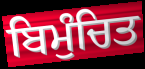
ਬਿਮੁੰਚਿਤ